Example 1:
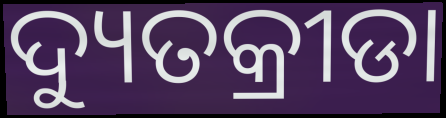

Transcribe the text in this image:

ଦ୍ୟୁତକ୍ରୀଡା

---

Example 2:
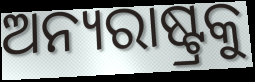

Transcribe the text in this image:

ଅନ୍ୟରାଷ୍ଟ୍ରକୁ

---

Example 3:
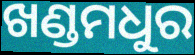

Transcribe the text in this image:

ଖଣ୍ଡମଧୁର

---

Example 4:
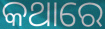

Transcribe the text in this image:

କଥାରେ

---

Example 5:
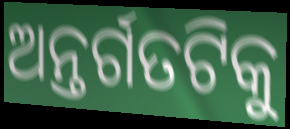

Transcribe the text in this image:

ଅନ୍ତର୍ଗତଟିକୁ